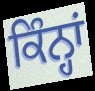
ਕਿੰਨ੍ਹਾਂ